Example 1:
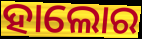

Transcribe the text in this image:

ହାଲୋର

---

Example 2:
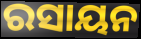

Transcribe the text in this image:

ରସାୟନ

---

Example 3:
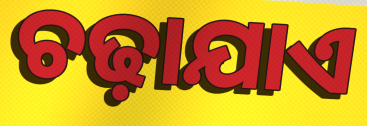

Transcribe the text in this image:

ଚଢ଼ାଯାଏ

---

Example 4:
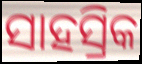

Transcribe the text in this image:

ସାହସ୍ରିକ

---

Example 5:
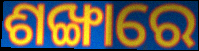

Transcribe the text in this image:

ଶଙ୍ଖାରେ